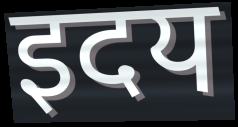
इदय